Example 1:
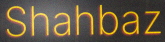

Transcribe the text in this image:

Shahbaz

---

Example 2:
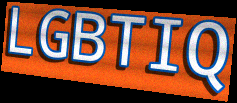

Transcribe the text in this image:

LGBTIQ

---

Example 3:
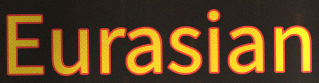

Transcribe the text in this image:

Eurasian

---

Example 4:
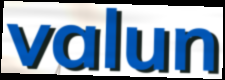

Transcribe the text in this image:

valun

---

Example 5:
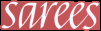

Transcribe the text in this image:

sarees